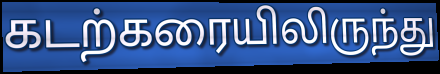
கடற்கரையிலிருந்து